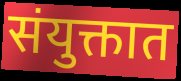
संयुक्तात